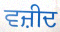
ਵਜ਼ੀਦ